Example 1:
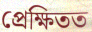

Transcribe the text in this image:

প্ৰেক্ষিতত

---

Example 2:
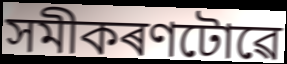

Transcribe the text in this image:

সমীকৰণটোৱে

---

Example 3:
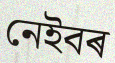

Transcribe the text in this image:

নেইবৰ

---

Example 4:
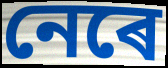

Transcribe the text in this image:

নেৰে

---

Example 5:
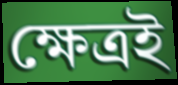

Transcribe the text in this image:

ক্ষেত্ৰই